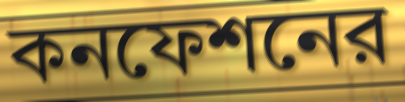
কনফেশনের